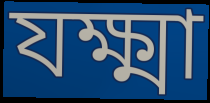
যক্ষ্মা